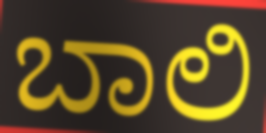
ಬಾಲಿ